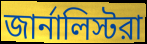
জার্নালিস্টরা